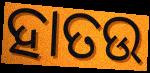
ହାତଉ